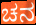
ಚನ